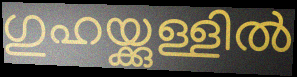
ഗുഹയ്ക്കുള്ളിൽ